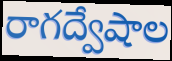
రాగద్వేషాల